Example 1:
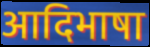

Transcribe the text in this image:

आदिभाषा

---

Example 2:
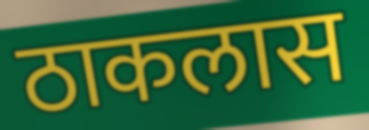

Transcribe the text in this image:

ठाकलास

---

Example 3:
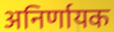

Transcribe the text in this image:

अनिर्णायक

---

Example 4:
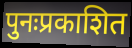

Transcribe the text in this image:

पुनःप्रकाशित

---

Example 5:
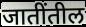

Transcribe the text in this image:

जातींतील